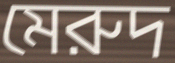
মেরুদ